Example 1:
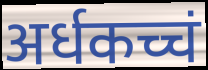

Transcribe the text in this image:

अर्धकच्चं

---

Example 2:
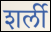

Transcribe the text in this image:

शर्ली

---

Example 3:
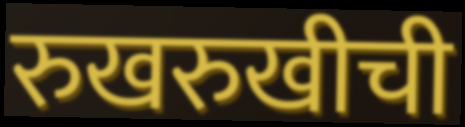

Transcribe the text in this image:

रुखरुखीची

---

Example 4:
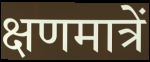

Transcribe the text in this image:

क्षणमात्रें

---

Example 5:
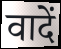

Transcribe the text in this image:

वादें